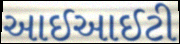
આઈઆઈટી